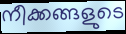
നീക്കങ്ങളുടെ